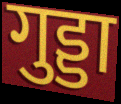
गुड्डा